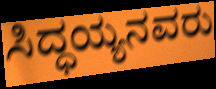
ಸಿದ್ಧಯ್ಯನವರು